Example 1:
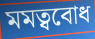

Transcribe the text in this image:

মমত্ববোধ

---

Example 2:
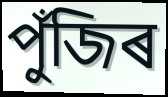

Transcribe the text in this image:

পুঁজিৰ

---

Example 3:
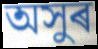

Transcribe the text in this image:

অসুৰ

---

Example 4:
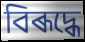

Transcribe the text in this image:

বিৰূদ্ধে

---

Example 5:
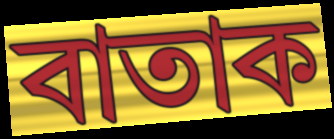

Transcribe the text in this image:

বাতাক